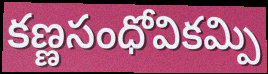
కణ్ణసంధోవికమ్పి